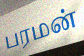
பரமன்